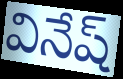
వినేష్